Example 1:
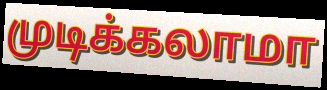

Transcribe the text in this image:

முடிக்கலாமா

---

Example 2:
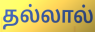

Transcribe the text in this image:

தல்லால்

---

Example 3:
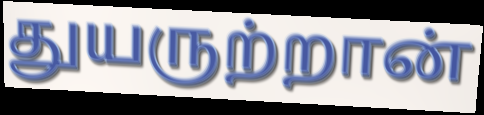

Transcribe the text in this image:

துயருற்றான்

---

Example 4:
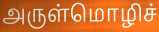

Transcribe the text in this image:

அருள்மொழிச்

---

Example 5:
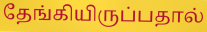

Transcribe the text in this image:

தேங்கியிருப்பதால்